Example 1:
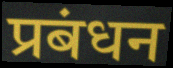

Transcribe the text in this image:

प्रबंधन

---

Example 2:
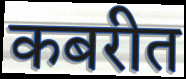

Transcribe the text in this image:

कबरीत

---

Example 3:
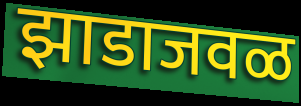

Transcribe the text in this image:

झाडाजवळ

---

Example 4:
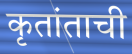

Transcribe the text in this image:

कृतांताची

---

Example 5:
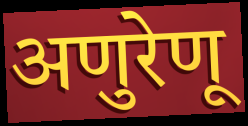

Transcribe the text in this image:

अणुरेणू